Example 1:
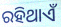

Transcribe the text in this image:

ରହିଥାଏଁ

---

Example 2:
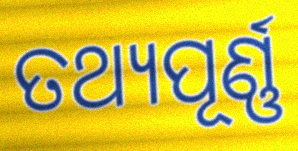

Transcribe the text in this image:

ତଥ୍ୟପୂର୍ଣ୍ଣ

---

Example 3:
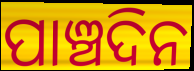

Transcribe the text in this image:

ପାଞ୍ଚଦିନ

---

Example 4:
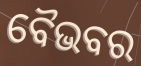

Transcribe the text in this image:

ବୈଭବର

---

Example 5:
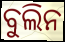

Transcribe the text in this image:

ବୁଲିନ